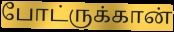
போட்ருக்கான்